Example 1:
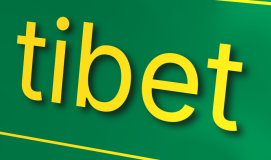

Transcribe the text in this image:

tibet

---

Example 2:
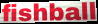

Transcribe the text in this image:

fishball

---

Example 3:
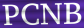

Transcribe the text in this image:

PCNB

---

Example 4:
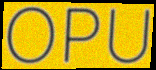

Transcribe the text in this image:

OPU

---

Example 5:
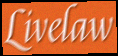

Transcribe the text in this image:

Livelaw